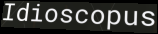
Idioscopus